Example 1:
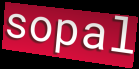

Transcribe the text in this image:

sopal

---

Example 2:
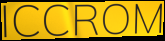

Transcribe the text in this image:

ICCROM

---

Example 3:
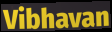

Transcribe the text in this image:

Vibhavan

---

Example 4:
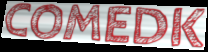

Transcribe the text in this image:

COMEDK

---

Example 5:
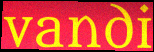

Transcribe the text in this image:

vandi